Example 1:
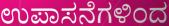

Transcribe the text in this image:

ಉಪಾಸನೆಗಳಿಂದ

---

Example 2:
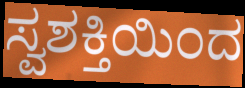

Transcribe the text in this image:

ಸ್ವಶಕ್ತಿಯಿಂದ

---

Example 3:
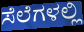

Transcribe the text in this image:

ಸೆಲೆಗಳಲ್ಲಿ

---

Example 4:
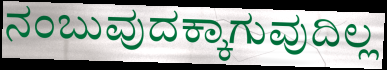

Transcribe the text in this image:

ನಂಬುವುದಕ್ಕಾಗುವುದಿಲ್ಲ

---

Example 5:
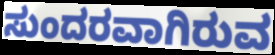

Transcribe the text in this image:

ಸುಂದರವಾಗಿರುವ